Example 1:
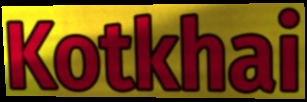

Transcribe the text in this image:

Kotkhai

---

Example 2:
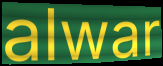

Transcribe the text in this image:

alwar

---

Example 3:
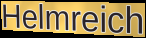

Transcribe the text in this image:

Helmreich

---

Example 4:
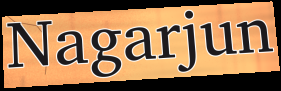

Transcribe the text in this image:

Nagarjun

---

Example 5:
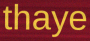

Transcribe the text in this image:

thaye